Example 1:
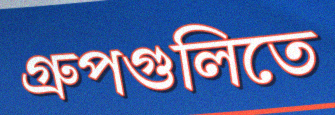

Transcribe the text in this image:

গ্রুপগুলিতে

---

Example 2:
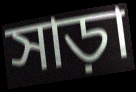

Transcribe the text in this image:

সাড়া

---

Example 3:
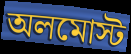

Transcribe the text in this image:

অলমোস্ট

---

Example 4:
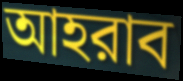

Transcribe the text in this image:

আহরাব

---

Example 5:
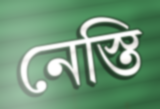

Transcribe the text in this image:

নেস্তি